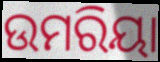
ଉମରିୟା